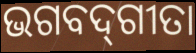
ଭଗବଦ୍‍ଗୀତା